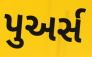
પુઅર્સ